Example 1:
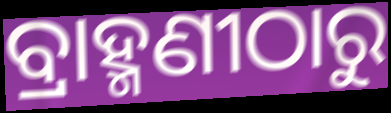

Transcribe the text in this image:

ବ୍ରାହ୍ମଣୀଠାରୁ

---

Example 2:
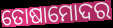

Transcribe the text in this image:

ତୋଷାମୋଦର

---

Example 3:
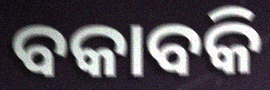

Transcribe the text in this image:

ବକାବକି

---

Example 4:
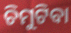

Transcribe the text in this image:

ଚିମୁଟିବା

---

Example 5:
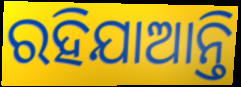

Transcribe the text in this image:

ରହିଯାଆନ୍ତି